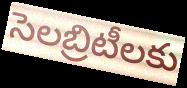
సెలబ్రిటీలకు